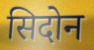
सिदोन